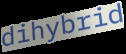
dihybrid